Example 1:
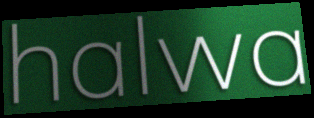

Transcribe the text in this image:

halwa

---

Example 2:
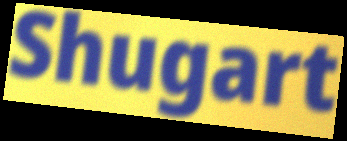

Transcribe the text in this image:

Shugart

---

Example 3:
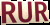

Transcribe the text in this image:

RUR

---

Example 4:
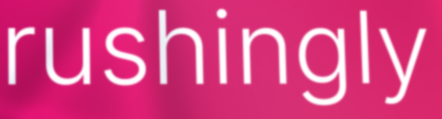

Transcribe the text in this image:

rushingly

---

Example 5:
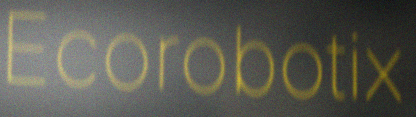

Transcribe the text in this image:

Ecorobotix